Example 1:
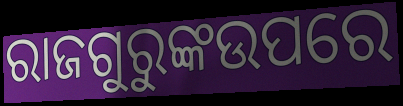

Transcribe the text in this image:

ରାଜଗୁରୁଙ୍କଉପରେ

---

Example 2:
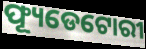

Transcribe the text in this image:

ଫ୍ୟୂଡେଟୋରୀ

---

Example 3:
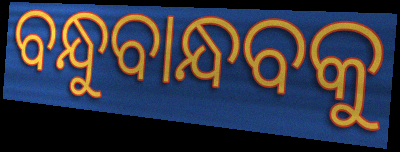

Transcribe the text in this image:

ବନ୍ଧୁବାନ୍ଧବକୁ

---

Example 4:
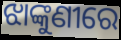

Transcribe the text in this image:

ଝାଙ୍କୁଣୀରେ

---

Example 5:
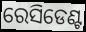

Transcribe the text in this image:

ରେସିଡେଣ୍ଟ